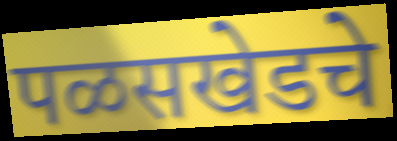
पळसखेडचे